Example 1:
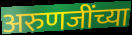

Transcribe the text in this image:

अरुणजींच्या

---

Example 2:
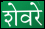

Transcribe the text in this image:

शेवरे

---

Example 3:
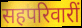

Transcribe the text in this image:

सहपरिवारीं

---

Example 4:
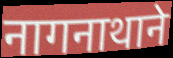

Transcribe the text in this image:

नागनाथाने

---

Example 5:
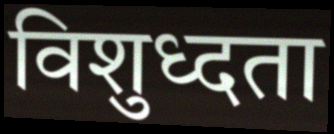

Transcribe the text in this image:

विशुध्दता